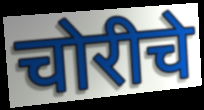
चोरीचे